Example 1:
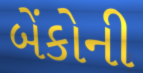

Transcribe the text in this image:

બેંકોની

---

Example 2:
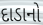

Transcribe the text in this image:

દાડાનો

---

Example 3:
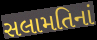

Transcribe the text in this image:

સલામતિનાં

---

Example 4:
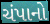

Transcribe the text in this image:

ચંપાનો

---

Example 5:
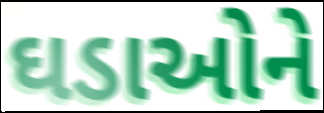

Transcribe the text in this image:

ઘડાઓને